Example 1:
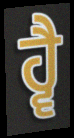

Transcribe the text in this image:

ਹ੍ਵੈ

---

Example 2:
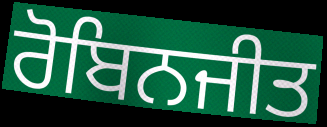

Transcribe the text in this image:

ਰੋਬਿਨਜੀਤ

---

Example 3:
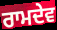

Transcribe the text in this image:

ਰਾਮਦੇਵ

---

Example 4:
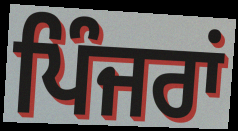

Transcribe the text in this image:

ਪਿੰਜਰਾਂ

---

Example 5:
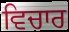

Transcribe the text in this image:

ਵਿਚਾਰ